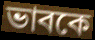
ভাবকে